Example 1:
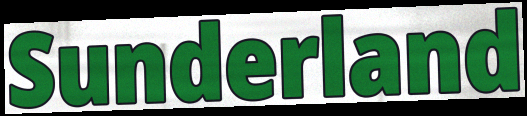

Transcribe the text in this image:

Sunderland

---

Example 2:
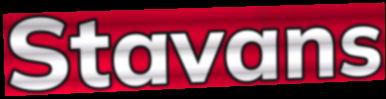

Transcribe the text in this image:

Stavans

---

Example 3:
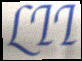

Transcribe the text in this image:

LII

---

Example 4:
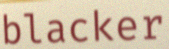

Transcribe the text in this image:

blacker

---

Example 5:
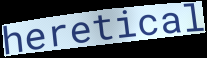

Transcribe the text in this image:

heretical